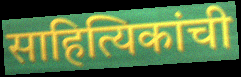
साहित्यिकांची